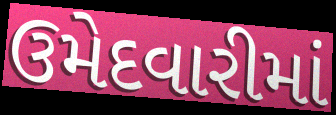
ઉમેદવારીમાં